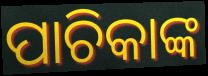
ପାଚିକାଙ୍କ